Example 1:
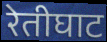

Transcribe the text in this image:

रेतीघाट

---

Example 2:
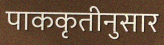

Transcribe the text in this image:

पाककृतीनुसार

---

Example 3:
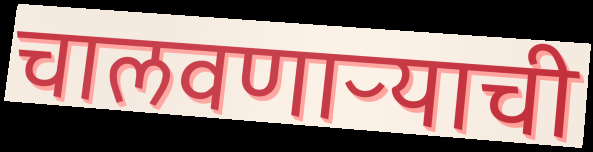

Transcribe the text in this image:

चालवणाऱ्याची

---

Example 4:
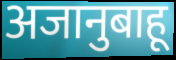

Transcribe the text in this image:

अजानुबाहू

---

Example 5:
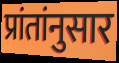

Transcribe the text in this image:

प्रांतांनुसार